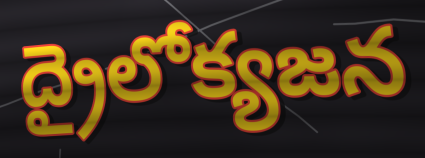
ద్రైలోక్యజన